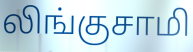
லிங்குசாமி